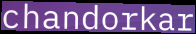
chandorkar